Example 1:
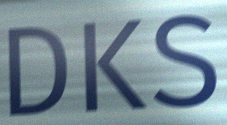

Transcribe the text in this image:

DKS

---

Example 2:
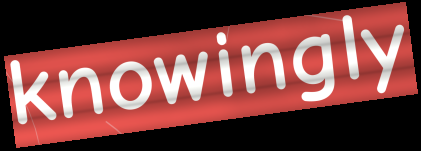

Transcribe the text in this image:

knowingly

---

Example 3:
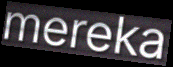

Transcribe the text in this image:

mereka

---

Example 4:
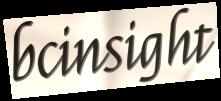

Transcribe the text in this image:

bcinsight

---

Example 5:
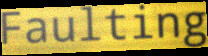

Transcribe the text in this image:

Faulting